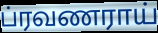
ப்ரவணராய்